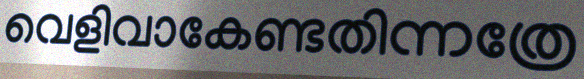
വെളിവാകേണ്ടതിന്നത്രേ